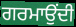
ਗਰਮਾਉਂਦੀ